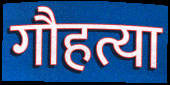
गौहत्या